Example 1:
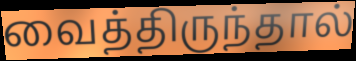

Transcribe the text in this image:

வைத்திருந்தால்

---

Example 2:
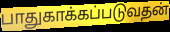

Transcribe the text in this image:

பாதுகாக்கப்படுவதன்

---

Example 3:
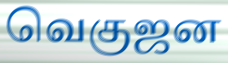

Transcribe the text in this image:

வெகுஜன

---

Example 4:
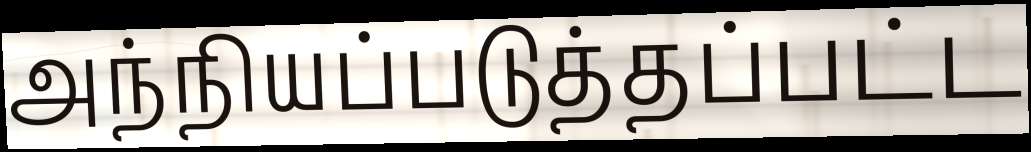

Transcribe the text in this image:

அந்நியப்படுத்தப்பட்ட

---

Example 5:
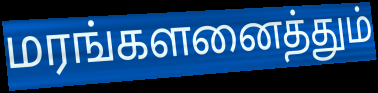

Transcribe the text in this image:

மரங்களனைத்தும்